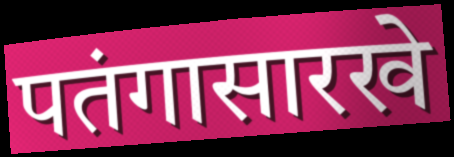
पतंगासारखे